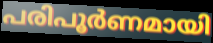
പരിപൂർണമായി